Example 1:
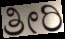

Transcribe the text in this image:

ತೀರಿ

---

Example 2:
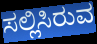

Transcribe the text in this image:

ಸಲ್ಲಿಸಿರುವ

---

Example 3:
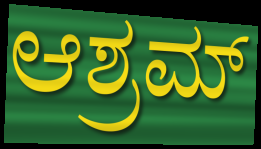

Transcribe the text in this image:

ಆಶ್ರಮ್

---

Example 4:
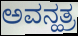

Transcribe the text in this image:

ಅವನ್ಹತ್ರ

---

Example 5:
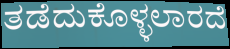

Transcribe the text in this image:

ತಡೆದುಕೊಳ್ಳಲಾರದೆ